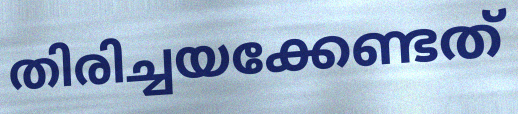
തിരിച്ചയക്കേണ്ടത്